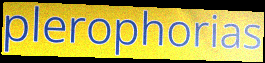
plerophorias